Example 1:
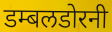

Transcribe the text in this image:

डम्बलडोरनी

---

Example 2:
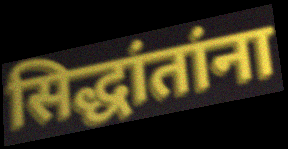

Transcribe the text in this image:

सिद्धांतांना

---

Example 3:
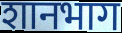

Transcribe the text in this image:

शानभाग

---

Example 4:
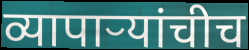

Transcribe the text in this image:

व्यापाऱ्यांचीच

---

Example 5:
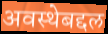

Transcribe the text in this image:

अवस्थेबद्दल